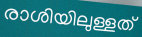
രാശിയിലുള്ളത്